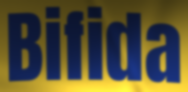
Bifida